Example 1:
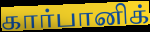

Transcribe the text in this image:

கார்பானிக்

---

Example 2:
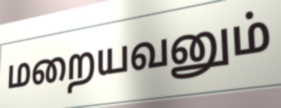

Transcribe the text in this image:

மறையவனும்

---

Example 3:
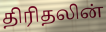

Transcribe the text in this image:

திரிதலின்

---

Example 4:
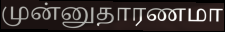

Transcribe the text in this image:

முன்னுதாரணமா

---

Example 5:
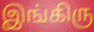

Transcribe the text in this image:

இங்கிரு